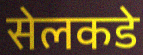
सेलकडे